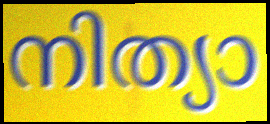
നിത്യാ